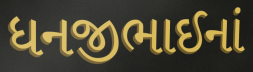
ધનજીભાઈનાં